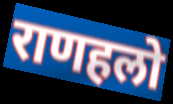
राणहलो